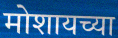
मोशायच्या